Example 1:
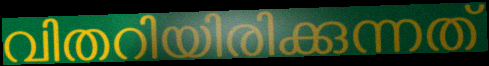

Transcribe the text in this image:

വിതറിയിരിക്കുന്നത്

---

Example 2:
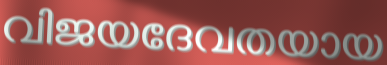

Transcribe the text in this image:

വിജയദേവതയായ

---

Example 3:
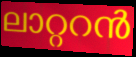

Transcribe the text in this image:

ലാറ്ററൻ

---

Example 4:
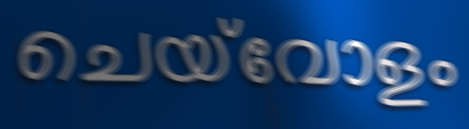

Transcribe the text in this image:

ചെയ്‌വോളം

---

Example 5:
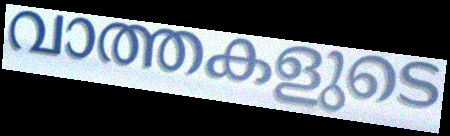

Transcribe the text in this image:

വാത്തകളുടെ